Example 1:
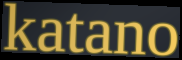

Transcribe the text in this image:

katano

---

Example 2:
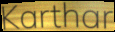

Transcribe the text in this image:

Karthar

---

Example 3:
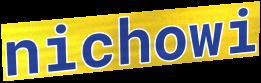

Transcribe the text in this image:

nichowi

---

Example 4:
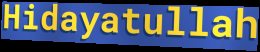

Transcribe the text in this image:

Hidayatullah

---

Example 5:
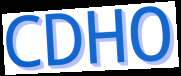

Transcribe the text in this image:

CDHO